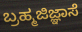
ಬ್ರಹ್ಮಜಿಜ್ಞಾಸೆ